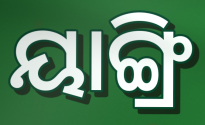
ୟାଙ୍ଗ୍ରି